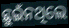
ଛୁଇଁନଥିଲେ